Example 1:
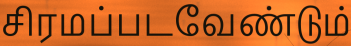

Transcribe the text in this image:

சிரமப்படவேண்டும்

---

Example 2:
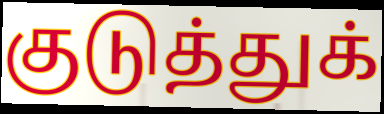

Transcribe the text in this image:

குடுத்துக்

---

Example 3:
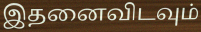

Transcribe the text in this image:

இதனைவிடவும்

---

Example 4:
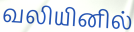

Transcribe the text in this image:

வலியினில்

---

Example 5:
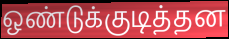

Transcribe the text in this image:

ஒண்டுக்குடித்தன